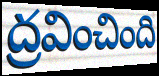
ద్రవించింది